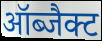
ऑब्जैक्ट